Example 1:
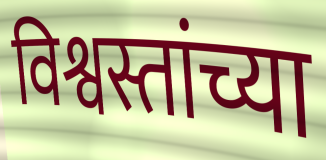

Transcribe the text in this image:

विश्वस्तांच्या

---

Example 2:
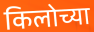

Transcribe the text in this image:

किलोच्या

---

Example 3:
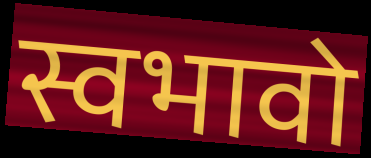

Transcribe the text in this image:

स्वभावो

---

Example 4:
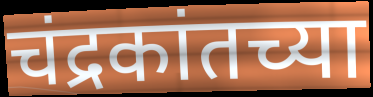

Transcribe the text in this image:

चंद्रकांतच्या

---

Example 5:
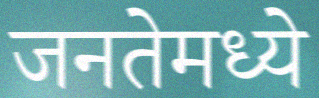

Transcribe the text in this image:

जनतेमध्ये